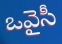
ఒవైసీ